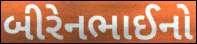
બીરેનભાઈનો